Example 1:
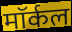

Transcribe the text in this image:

मॉर्कल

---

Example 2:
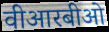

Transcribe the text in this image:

वीआरबीओ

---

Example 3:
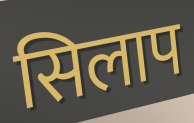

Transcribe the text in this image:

सिलाप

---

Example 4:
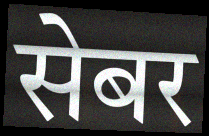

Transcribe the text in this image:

सेबर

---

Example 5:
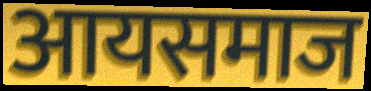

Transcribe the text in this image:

आयसमाज